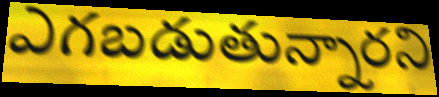
ఎగబడుతున్నారని